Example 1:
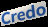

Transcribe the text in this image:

Credo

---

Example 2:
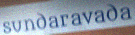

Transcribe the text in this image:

sundaravada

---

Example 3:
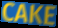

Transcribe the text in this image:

CAKE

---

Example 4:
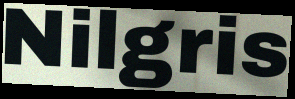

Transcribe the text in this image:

Nilgris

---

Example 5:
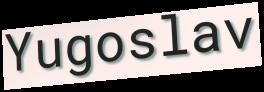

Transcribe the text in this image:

Yugoslav